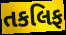
તકલિફ